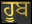
ਹੂਬ